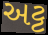
અટ્ટ